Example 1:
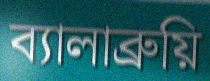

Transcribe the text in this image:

ব্যালাব্রুয়ি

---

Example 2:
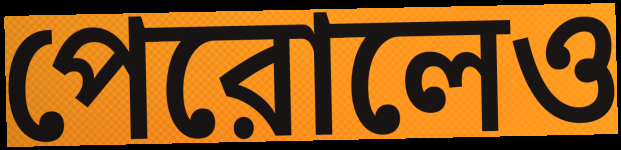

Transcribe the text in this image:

পেরোলেও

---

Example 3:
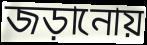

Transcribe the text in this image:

জড়ানোয়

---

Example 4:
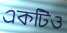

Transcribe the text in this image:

একটিও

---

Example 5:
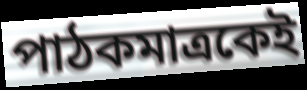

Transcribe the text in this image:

পাঠকমাত্রকেই